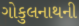
ગોકુલનાથની